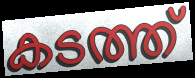
കടത്ത്